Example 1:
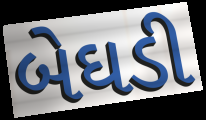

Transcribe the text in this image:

બેઘડી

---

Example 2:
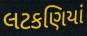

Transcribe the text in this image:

લટકણિયાં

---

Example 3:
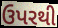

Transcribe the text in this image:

ઉપરથી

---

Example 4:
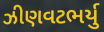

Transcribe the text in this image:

ઝીણવટભર્યુ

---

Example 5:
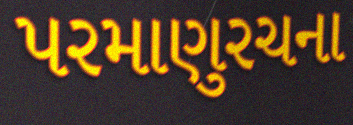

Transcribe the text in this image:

પરમાણુરચના